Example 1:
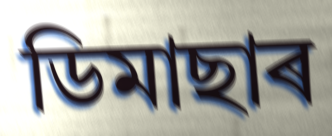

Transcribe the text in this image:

ডিমাছাৰ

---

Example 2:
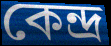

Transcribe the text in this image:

কেন্দ্ৰ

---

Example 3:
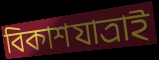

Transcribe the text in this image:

বিকাশযাত্ৰাই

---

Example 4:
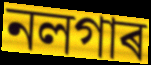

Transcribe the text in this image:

নলগাৰ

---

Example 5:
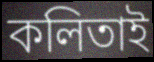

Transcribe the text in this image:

কলিতাই